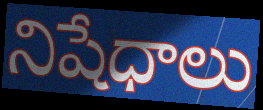
నిషేధాలు